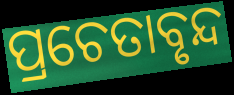
ପ୍ରଚେତାବୃନ୍ଦ